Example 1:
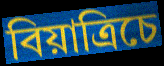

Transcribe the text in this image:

বিয়াত্রিচে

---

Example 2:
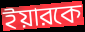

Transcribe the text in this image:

ইয়ারকে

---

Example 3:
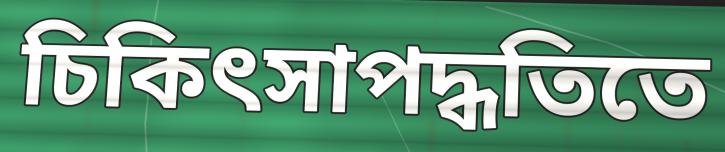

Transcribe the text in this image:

চিকিৎসাপদ্ধতিতে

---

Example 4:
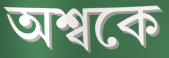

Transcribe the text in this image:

অশ্বকে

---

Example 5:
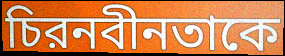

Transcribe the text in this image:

চিরনবীনতাকে